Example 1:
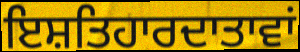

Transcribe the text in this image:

ਇਸ਼ਤਿਹਾਰਦਾਤਾਵਾਂ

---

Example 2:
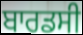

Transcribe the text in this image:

ਬਾਰਡਸੀ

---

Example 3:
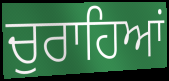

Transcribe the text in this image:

ਚੁਰਾਹਿਆਂ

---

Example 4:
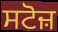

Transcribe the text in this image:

ਸਟੋਜ਼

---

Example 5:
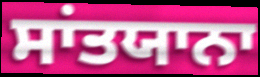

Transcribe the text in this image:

ਸਾਂਤਯਾਨਾ